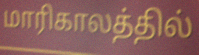
மாரிகாலத்தில்